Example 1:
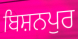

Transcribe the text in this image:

ਬਿਸ਼ਨਪੁਰ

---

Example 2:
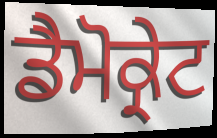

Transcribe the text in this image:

ਡੈਮੋਕ੍ਰੇਟ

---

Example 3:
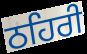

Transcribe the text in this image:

ਠਹਿਰੀ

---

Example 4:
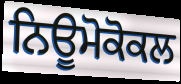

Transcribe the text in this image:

ਨਿਊਮੋਕੋਕਲ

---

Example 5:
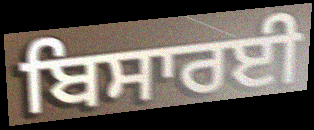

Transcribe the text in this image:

ਬਿਸਾਰਈ